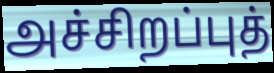
அச்சிறப்புத்